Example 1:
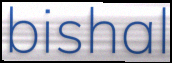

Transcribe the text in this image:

bishal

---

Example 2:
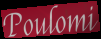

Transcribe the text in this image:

Poulomi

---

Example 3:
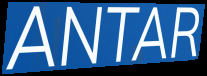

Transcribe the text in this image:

ANTAR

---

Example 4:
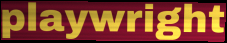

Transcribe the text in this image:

playwright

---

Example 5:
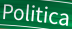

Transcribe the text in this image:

Politica